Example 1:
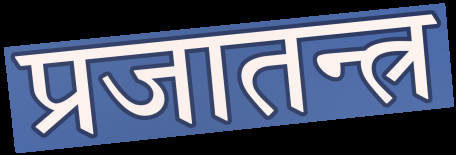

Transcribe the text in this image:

प्रजातन्त्र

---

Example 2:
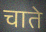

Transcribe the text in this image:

चाते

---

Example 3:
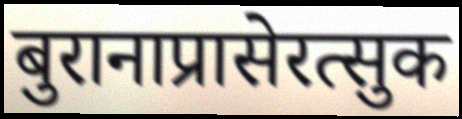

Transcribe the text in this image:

बुरानाप्रासेरत्सुक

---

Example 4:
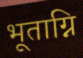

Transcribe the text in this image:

भूताग्नि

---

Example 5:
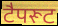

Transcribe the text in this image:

टैपरूट